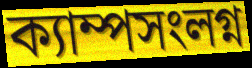
ক্যাম্পসংলগ্ন